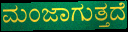
ಮಂಜಾಗುತ್ತದೆ